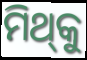
ମିଥ୍‍କୁ